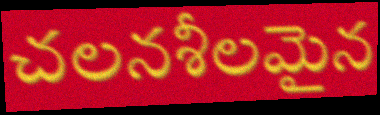
చలనశీలమైన